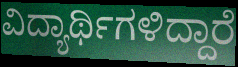
ವಿದ್ಯಾರ್ಥಿಗಳಿದ್ದಾರೆ